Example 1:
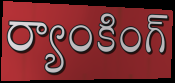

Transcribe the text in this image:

ర్యాంకింగ్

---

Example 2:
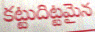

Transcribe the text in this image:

కట్టుదిట్టమైన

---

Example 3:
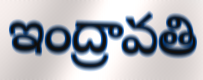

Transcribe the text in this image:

ఇంద్రావతి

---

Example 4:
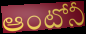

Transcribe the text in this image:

ఆంటోనీ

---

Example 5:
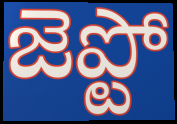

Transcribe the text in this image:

జెప్టో